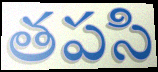
తపసి